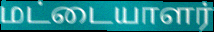
மட்டையாளர்